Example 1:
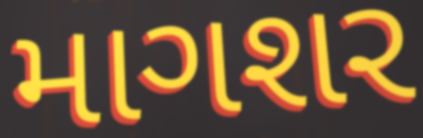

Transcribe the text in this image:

માગશર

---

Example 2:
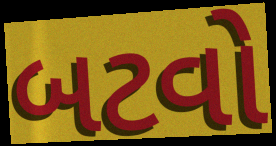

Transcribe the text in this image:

બટવો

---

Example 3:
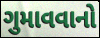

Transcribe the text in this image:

ગુમાવવાનો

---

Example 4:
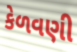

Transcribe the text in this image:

કેળવણી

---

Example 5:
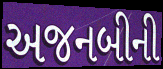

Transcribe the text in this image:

અજનબીની